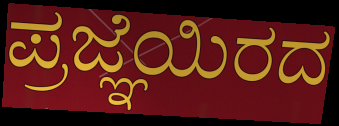
ಪ್ರಜ್ಞೆಯಿರದ